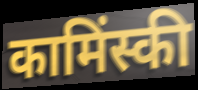
कामिंस्की